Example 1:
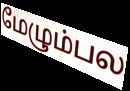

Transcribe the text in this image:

மேழும்பல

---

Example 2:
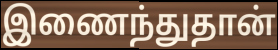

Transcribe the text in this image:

இணைந்துதான்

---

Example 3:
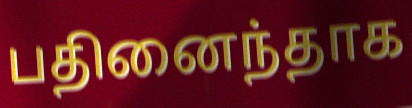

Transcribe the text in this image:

பதினைந்தாக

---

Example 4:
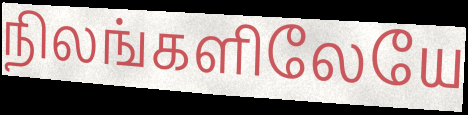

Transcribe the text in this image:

நிலங்களிலேயே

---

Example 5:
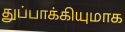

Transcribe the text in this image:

துப்பாக்கியுமாக